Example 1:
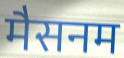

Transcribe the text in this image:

मैसनम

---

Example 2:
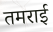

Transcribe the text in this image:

तमराई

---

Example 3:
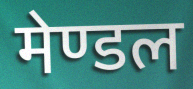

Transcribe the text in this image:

मेण्डल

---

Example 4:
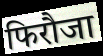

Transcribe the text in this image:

फिरौजा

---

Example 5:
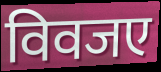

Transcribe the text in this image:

विवजए